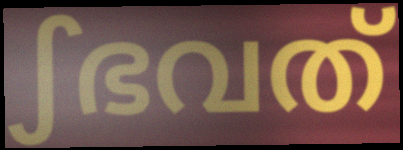
ഽഭവത്